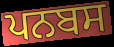
ਪਨਬਸ